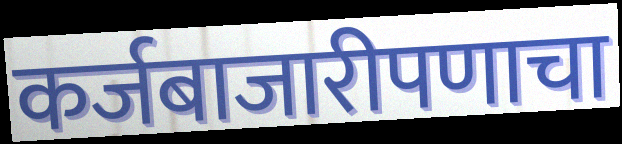
कर्जबाजारीपणाचा